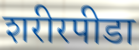
शरीरपीडा